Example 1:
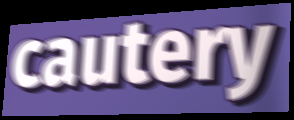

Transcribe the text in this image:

cautery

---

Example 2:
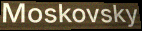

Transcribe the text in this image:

Moskovsky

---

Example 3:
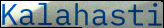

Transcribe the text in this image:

Kalahasti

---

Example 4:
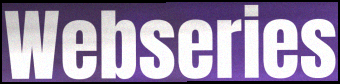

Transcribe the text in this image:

Webseries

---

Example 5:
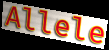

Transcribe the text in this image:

Allele